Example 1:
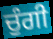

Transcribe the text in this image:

ਚੁੰਗੀ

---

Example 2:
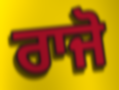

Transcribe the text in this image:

ਰਾਜੋ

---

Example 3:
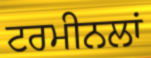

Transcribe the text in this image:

ਟਰਮੀਨਲਾਂ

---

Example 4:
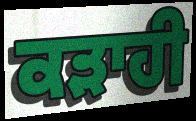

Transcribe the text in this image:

ਕੜਾਹੀ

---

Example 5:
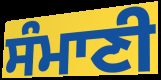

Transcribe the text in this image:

ਸੰਮਾਣੀ